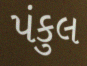
પંકુલ